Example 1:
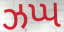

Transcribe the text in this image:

ઝપ્પ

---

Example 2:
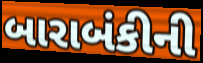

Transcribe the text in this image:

બારાબંકીની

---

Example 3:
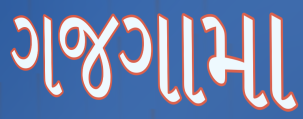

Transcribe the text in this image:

ગજગામા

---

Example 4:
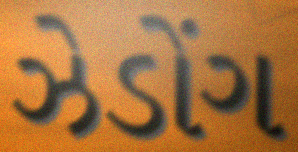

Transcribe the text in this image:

ઝેડોંગ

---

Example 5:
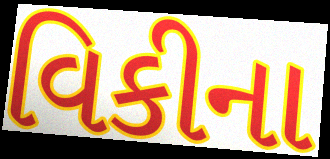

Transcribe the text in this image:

વિકીના